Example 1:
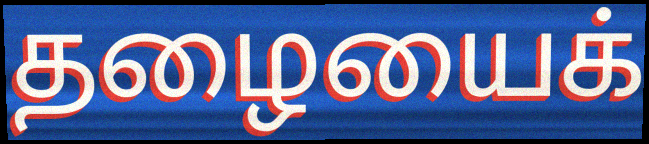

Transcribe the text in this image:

தழையைக்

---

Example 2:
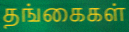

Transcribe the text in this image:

தங்கைகள்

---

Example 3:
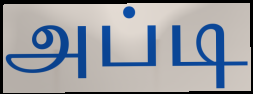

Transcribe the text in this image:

அப்டி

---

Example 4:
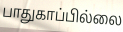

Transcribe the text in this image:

பாதுகாப்பில்லை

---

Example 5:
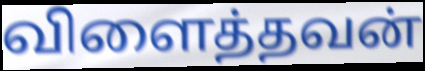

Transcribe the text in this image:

விளைத்தவன்